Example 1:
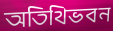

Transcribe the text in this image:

অতিথিভবন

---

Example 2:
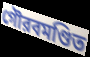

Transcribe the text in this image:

গৌরবমণ্ডিত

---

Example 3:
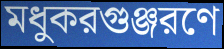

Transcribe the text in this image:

মধুকরগুঞ্জরণে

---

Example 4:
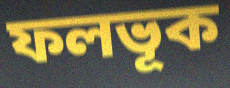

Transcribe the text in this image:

ফলভূক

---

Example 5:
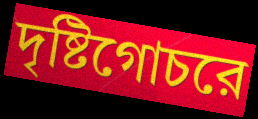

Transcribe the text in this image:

দৃষ্টিগোচরে